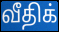
வீதிக்